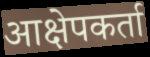
आक्षेपकर्ता